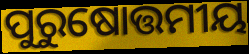
ପୁରୁଷୋତ୍ତମୀୟ